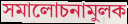
সমালোচনামুলক